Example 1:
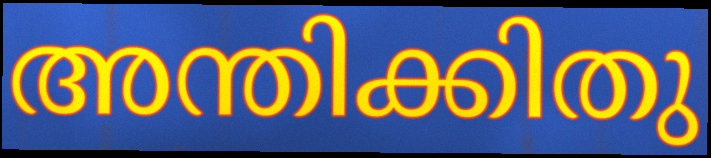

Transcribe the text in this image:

അന്തിക്കിതു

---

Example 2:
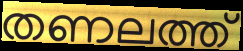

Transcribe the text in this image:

തണലത്ത്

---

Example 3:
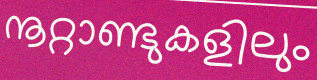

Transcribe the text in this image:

നൂറ്റാണ്ടുകളിലും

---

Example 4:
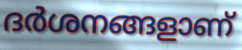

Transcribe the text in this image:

ദർശനങ്ങളാണ്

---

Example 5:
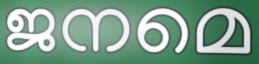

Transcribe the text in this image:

ജനമെ